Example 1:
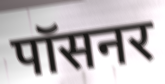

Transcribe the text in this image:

पॉसनर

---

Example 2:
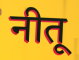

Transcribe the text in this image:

नीतू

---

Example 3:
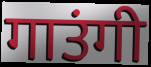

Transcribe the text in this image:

गाउंगी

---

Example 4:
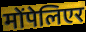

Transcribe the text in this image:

मोंपेलिएर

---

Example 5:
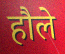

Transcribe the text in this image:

हौले